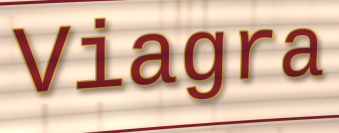
Viagra